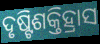
ଦୃଷ୍ଟିଶକ୍ତିହ୍ରାସ